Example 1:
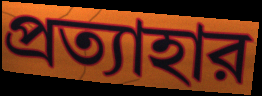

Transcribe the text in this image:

প্রত্যাহার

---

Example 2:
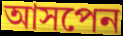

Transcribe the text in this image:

আসপেন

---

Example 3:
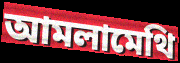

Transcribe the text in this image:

আমলামেথি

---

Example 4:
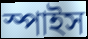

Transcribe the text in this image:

স্পাইস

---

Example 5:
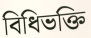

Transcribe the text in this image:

বিধিভক্তি